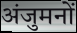
अंजुमनों